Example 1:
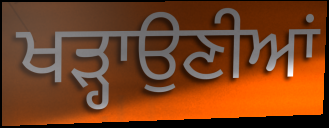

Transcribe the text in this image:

ਖੜ੍ਹਾਉਣੀਆਂ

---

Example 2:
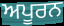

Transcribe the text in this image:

ਅਪੂਰਨ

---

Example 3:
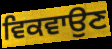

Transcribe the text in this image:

ਵਿਕਵਾਉਣ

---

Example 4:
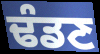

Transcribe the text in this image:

ਢੰਡਣ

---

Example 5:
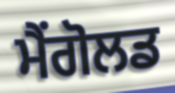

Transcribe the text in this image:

ਮੈਂਗੋਲਡ